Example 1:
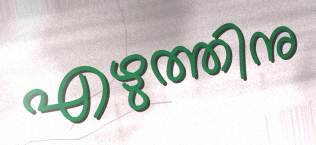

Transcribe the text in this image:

എഴുത്തിനു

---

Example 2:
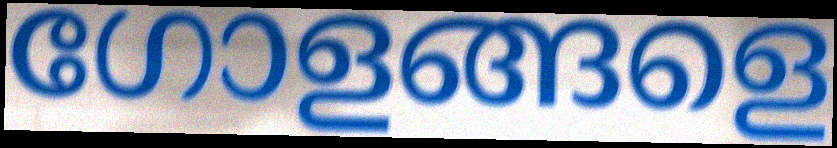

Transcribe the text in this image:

ഗോളങ്ങളെ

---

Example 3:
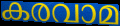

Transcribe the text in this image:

കരവാമ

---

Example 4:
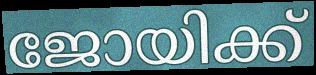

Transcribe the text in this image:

ജോയിക്ക്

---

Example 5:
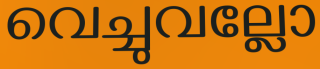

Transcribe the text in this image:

വെച്ചുവല്ലോ